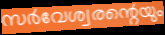
സർവേശ്വരന്റെയും